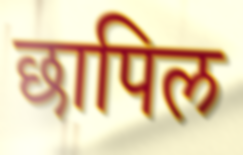
छापिल